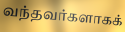
வந்தவர்களாகக்